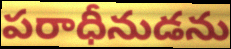
పరాధీనుడను